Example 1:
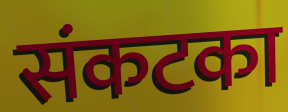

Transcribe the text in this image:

संकटका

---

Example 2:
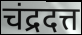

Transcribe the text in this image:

चंद्रदत्त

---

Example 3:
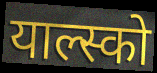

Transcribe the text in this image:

याल्स्को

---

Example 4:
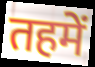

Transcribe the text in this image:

तहमें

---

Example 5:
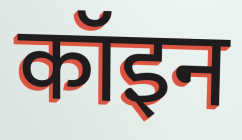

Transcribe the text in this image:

कॉइन